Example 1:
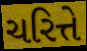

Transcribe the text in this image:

ચરિત્તે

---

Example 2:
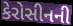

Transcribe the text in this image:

કેરોસીનની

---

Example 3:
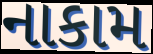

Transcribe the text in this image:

નાકામ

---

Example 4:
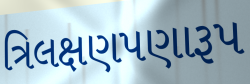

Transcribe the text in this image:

ત્રિલક્ષણપણારૂપ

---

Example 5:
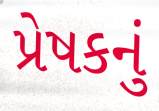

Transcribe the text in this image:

પ્રેષકનું